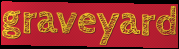
graveyard